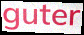
guter